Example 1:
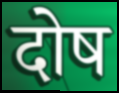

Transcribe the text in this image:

दोष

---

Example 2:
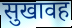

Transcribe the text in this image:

सुखावह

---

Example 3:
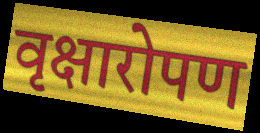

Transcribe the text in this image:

वृक्षारोपण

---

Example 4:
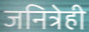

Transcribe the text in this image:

जनित्रेही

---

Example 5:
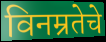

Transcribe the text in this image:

विनम्रतेचे